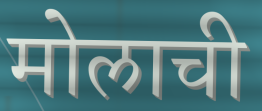
मोलाची